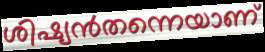
ശിഷ്യൻതന്നെയാണ്